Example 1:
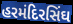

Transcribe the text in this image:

હરમંદિરસિંઘ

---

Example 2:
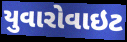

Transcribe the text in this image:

યુવારોવાઇટ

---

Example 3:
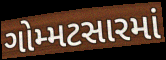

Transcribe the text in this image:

ગોમ્મટસારમાં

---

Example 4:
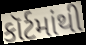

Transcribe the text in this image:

કૉર્ટમાંથી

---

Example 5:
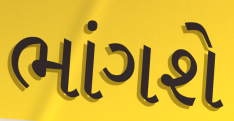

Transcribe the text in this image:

ભાંગશે